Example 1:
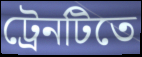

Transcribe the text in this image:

ট্রেনটিতে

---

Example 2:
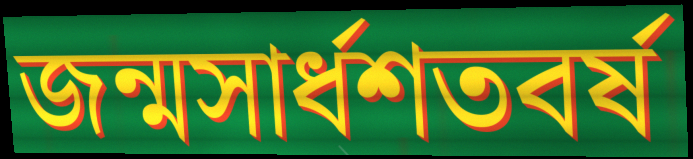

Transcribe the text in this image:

জন্মসার্ধশতবর্ষ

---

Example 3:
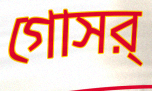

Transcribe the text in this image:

গোসর্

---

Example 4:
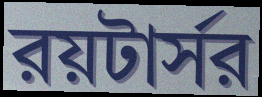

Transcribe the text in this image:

রয়টার্সর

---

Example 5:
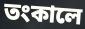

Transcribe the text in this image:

তংকালে